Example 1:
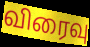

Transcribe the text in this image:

விரைவு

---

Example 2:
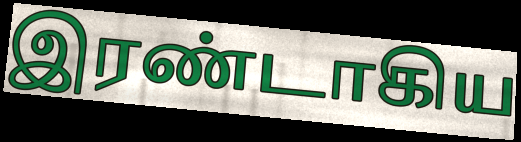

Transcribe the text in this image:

இரண்டாகிய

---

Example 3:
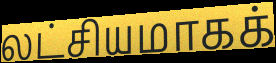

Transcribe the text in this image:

லட்சியமாகக்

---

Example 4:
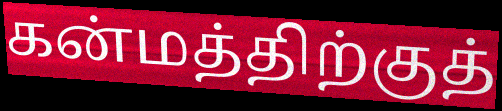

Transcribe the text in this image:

கன்மத்திற்குத்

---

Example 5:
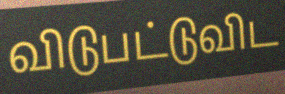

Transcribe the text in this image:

விடுபட்டுவிட